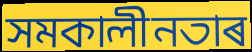
সমকালীনতাৰ